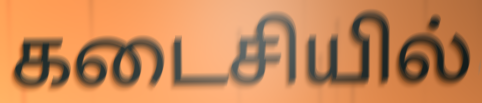
கடைசியில்